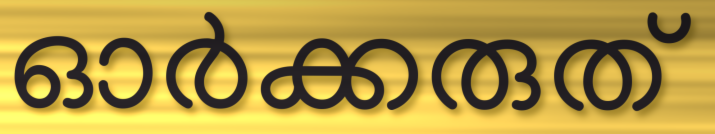
ഓർക്കരുത്